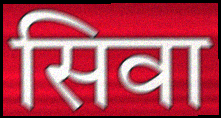
सिवा